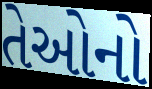
તેઓનો